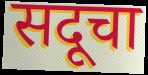
सदूचा